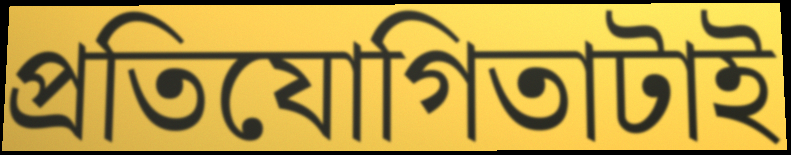
প্রতিযোগিতাটাই